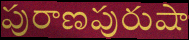
పురాణపురుషా